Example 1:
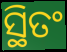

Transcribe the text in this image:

ସ୍ଥିତଂ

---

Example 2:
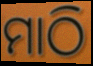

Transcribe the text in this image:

ମାଠି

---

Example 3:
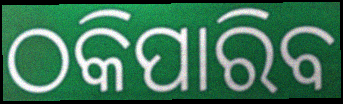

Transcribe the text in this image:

ଠକିପାରିବ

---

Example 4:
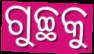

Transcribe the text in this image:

ଗୁଚ୍ଛକୁ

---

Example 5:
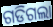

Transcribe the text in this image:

ଗଡିଗଲା